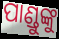
ପାଣ୍ଡୁଙ୍କୁ